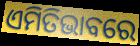
ଏମିତିଭାବରେ